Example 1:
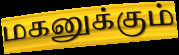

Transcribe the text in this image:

மகனுக்கும்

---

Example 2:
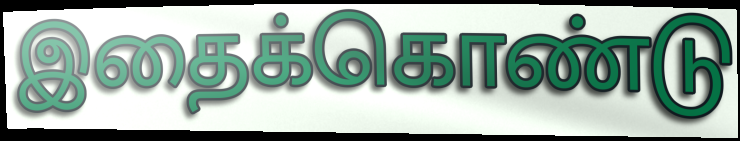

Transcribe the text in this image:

இதைக்கொண்டு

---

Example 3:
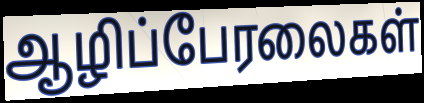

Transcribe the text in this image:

ஆழிப்பேரலைகள்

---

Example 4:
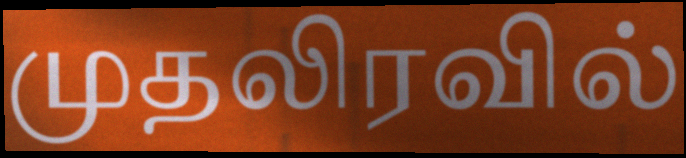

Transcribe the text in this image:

முதலிரவில்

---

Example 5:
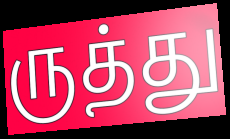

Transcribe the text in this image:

ருத்து